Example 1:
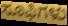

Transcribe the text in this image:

ಸೂಫಿಗಳು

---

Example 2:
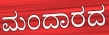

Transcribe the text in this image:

ಮಂದಾರದ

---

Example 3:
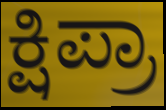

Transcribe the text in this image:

ಕ್ಷಿಪ್ರಾ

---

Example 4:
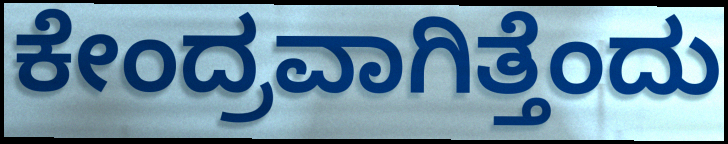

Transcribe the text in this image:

ಕೇಂದ್ರವಾಗಿತ್ತೆಂದು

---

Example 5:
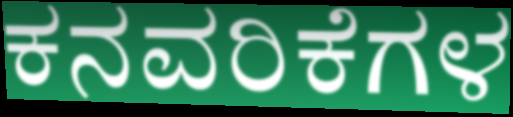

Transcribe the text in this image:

ಕನವರಿಕೆಗಳ